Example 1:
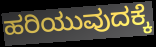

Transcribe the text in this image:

ಹರಿಯುವುದಕ್ಕೆ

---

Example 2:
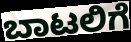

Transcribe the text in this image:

ಬಾಟಲಿಗೆ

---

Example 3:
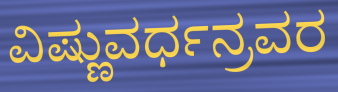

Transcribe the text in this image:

ವಿಷ್ಣುವರ್ಧನ್ರವರ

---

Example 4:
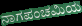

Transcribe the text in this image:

ನಾಗಪಂಚಮಿಯ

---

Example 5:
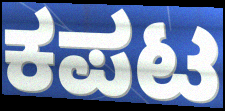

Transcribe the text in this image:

ಕಪಟ